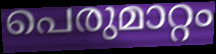
പെരുമാറ്റം